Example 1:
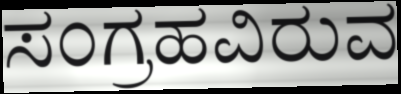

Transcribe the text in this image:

ಸಂಗ್ರಹವಿರುವ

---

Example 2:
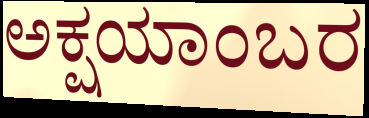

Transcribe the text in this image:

ಅಕ್ಷಯಾಂಬರ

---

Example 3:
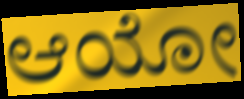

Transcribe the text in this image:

ಆಯೋ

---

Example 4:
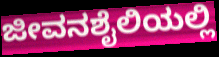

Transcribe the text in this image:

ಜೀವನಶೈಲಿಯಲ್ಲಿ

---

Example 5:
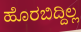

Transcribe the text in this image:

ಹೊರಬಿದ್ದಿಲ್ಲ